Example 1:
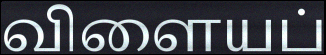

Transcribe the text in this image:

விளையப்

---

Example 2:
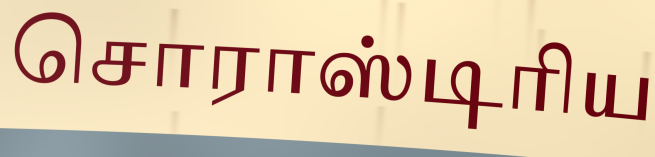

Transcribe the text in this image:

சொராஸ்டிரிய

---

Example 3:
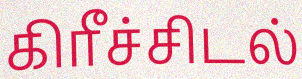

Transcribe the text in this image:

கிரீச்சிடல்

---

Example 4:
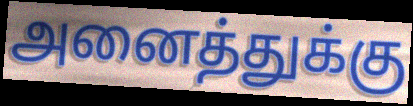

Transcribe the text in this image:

அனைத்துக்கு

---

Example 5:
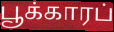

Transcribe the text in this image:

பூக்காரப்